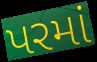
પરમાં